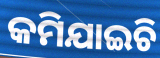
କମିଯାଇଚି